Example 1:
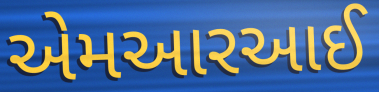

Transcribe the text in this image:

એમઆરઆઈ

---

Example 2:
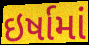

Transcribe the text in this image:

ઇર્ષામાં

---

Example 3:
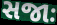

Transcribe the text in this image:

સજાઃ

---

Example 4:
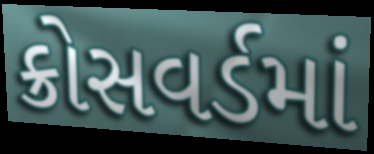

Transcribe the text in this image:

ક્રોસવર્ડમાં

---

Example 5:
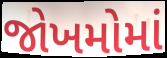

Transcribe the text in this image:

જોખમોમાં